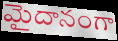
మైదానంగా